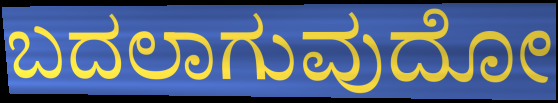
ಬದಲಾಗುವುದೋ